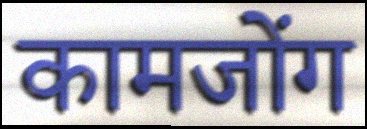
कामजोंग